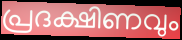
പ്രദക്ഷിണവും